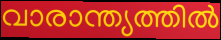
വാരാന്ത്യത്തിൽ